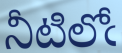
నీటిలోఁ